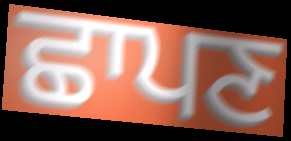
ਛਾਪਣ